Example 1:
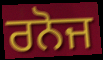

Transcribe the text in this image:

ਰਨੋਜ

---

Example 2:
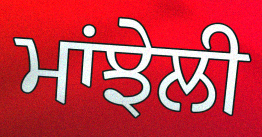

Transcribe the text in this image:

ਮਾਂਝੇਲੀ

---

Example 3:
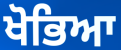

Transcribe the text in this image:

ਖੋਭਿਆ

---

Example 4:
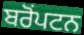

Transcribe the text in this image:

ਬਰੋਂਪਟਨ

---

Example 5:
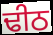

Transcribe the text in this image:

ਢੀਠ